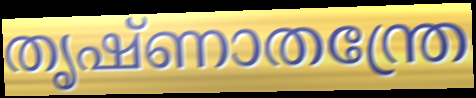
തൃഷ്ണാതന്ത്രേ